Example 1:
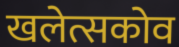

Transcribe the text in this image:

खलेत्सकोव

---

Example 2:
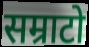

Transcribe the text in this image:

सम्राटो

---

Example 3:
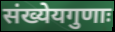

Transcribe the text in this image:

संख्येयगुणाः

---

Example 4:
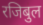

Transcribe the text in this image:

रजिबुल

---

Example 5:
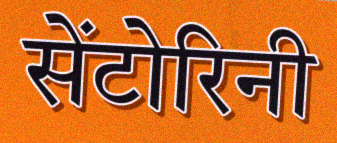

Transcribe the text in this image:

सेंटोरिनी